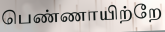
பெண்ணாயிற்றே